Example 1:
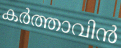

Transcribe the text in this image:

കർത്താവിൻ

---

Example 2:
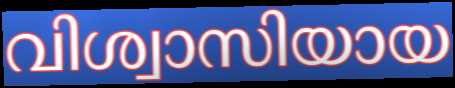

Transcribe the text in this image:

വിശ്വാസിയായ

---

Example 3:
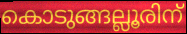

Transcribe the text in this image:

കൊടുങ്ങല്ലൂരിന്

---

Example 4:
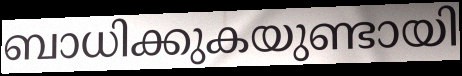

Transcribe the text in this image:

ബാധിക്കുകയുണ്ടായി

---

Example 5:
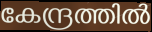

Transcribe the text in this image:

കേന്ദ്രത്തിൽ